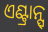
ଏଣ୍ଟ୍ରାନ୍ସ୍